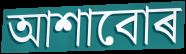
আশাবোৰ